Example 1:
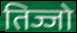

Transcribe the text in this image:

तिज्जो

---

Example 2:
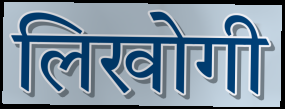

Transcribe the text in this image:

लिखोगी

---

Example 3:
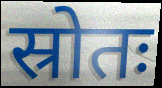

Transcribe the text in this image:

स्रोतः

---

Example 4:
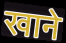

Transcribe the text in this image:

खाने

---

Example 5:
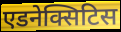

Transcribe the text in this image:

एडनेक्सिटिस